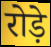
रोड़े